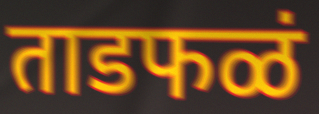
ताडफळं